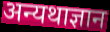
अन्यथाज्ञान